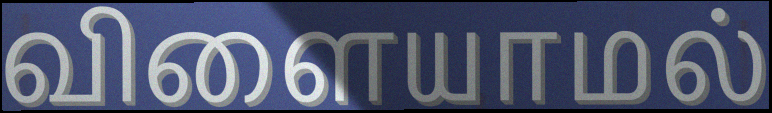
விளையாமல்